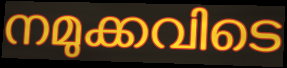
നമുക്കവിടെ